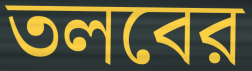
তলবের